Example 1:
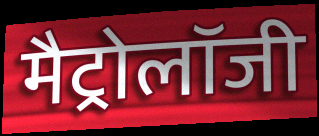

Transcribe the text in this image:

मैट्रोलॉजी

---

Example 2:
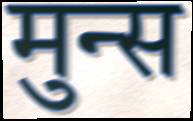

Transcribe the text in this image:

मुन्स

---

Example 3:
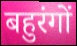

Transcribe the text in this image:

बहुरंगों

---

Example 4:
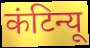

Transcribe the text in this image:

कंटिन्यू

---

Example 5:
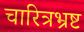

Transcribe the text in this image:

चारित्रभ्रष्ट